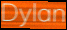
Dylan